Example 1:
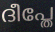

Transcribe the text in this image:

ദീപ്തേ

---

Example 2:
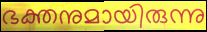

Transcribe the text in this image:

ഭക്തനുമായിരുന്നു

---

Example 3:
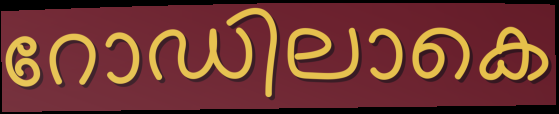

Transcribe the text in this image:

റോഡിലാകെ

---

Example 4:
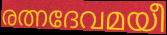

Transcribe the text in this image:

രത്നദേവമയീ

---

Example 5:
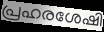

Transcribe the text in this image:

പ്രഹരശേഷി